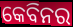
କେବିନର